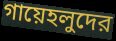
গায়েহলুদের